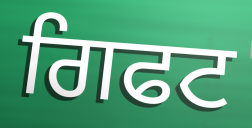
ਗਿਫਟ